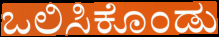
ಒಲಿಸಿಕೊಂಡು